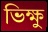
ভিক্ষু